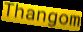
Thangom